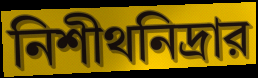
নিশীথনিদ্রার